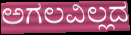
ಅಗಲವಿಲ್ಲದ